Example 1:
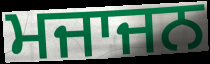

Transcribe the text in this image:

ਮਜਾਜਨ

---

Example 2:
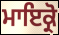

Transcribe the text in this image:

ਮਾਇਕ੍ਰੋ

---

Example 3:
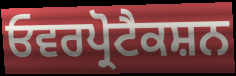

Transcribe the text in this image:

ਓਵਰਪ੍ਰੋਟੈਕਸ਼ਨ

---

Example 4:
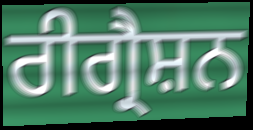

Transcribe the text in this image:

ਰੀਗ੍ਰੈਸ਼ਨ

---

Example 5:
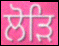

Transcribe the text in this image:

ਲੋੜਿ